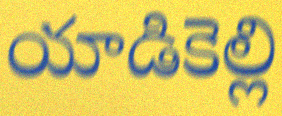
యాడికెల్లి